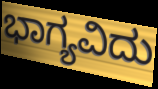
ಭಾಗ್ಯವಿದು